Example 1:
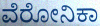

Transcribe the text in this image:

ವೆರೋನಿಕಾ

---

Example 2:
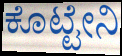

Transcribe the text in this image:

ಕೊಟ್ಟೇನಿ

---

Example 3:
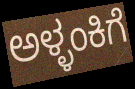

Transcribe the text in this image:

ಅಳ್ಳಂಕಿಗೆ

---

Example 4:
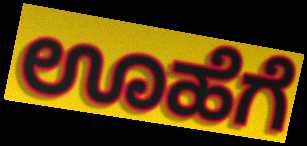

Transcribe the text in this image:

ಊಹೆಗೆ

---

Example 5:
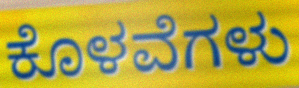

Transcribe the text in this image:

ಕೊಳವೆಗಳು